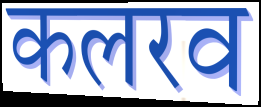
कलरव